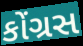
કોંગ્રસ